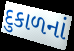
દુકાળનાં